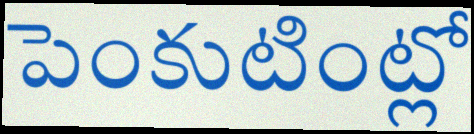
పెంకుటింట్లో